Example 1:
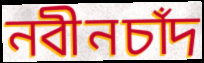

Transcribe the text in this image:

নবীনচাঁদ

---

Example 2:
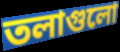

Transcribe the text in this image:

তলাগুলো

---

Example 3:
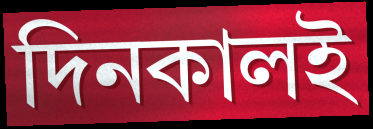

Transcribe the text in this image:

দিনকালই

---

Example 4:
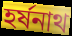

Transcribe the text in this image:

হর্ষনাথ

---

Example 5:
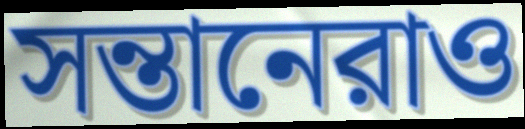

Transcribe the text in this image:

সন্তানেরাও